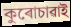
কুৰোচাৱাই